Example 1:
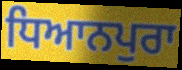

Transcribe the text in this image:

ਧਿਆਨਪੁਰਾ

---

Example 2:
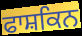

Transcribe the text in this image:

ਫਾਸ਼ਕਿਨ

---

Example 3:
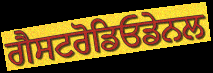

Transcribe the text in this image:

ਗੈਸਟਰੋਡਿਓਡੇਨਲ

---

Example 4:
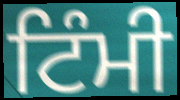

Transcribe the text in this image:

ਟਿੰਮੀ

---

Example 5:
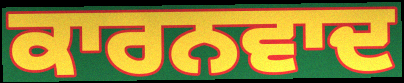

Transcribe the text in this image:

ਕਾਰਨਵਾਦ